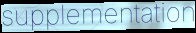
supplementation